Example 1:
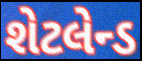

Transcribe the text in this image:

શેટલેન્ડ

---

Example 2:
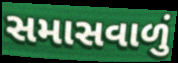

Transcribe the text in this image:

સમાસવાળું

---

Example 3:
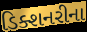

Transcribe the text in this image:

ડિક્શનરીના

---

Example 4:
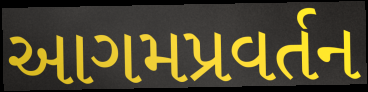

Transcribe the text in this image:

આગમપ્રવર્તન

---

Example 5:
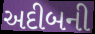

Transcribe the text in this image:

અદીબની